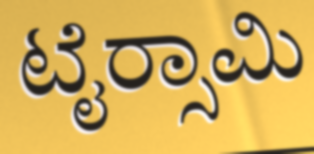
ಟೈರ‍್ಸಾಮಿ